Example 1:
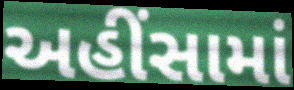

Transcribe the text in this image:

અહીંસામાં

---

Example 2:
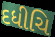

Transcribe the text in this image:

દધીચિ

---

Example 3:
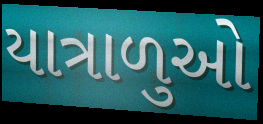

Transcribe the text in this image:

યાત્રાળુઓ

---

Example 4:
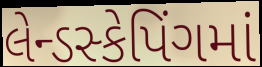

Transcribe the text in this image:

લેન્ડસ્કેપિંગમાં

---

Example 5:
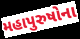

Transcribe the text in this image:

મહાપુરુષોના